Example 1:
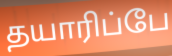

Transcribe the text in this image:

தயாரிப்பே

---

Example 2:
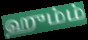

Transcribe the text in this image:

ஹும்ம்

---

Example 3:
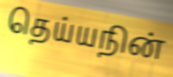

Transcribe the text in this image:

தெய்யநின்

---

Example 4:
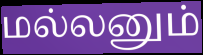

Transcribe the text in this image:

மல்லனும்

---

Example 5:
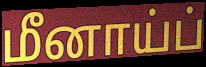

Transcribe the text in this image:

மீனாய்ப்